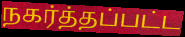
நகர்த்தப்பட்ட